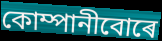
কোম্পানীবোৰে